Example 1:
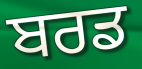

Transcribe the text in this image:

ਬਰਡ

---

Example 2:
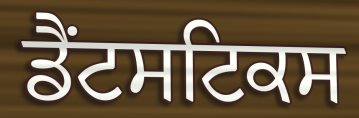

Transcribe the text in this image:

ਡੈਂਟਸਟਿਕਸ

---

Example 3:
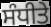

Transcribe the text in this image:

ਸੰਧੀਤੇ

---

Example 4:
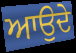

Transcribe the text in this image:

ਆਉਦੇ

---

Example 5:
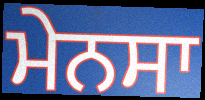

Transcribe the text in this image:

ਮੇਨਸਾ